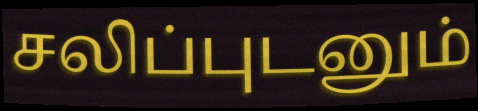
சலிப்புடனும்